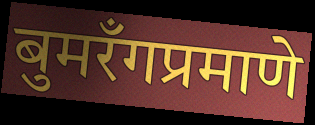
बुमरँगप्रमाणे